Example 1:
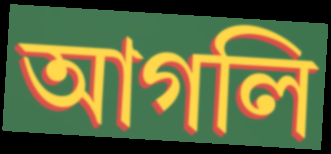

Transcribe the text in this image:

আগলি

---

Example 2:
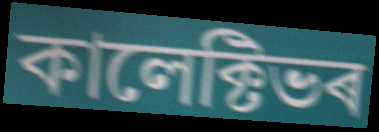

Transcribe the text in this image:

কালেক্টিভৰ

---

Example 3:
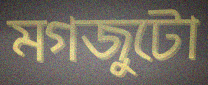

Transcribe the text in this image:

মগজুটো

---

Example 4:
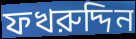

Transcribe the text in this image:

ফখৰুদ্দিন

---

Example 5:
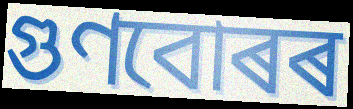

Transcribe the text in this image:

গুণবোৰৰ